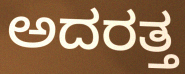
ಅದರತ್ತ